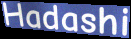
Hadashi